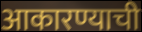
आकारण्याची